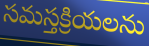
సమస్తక్రియలను